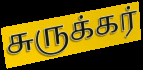
சுருக்கர்